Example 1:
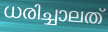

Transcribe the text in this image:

ധരിച്ചാലത്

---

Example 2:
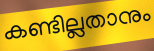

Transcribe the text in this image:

കണ്ടില്ലതാനും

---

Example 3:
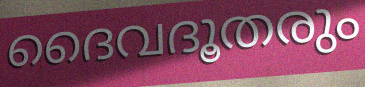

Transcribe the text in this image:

ദൈവദൂതരും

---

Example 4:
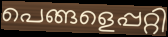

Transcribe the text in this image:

പെങ്ങളെപ്പറ്റി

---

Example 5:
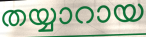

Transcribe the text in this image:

തയ്യാറായ